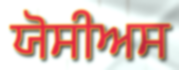
ਯੋਸੀਅਸ